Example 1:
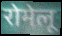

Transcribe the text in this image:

रोमेलू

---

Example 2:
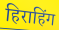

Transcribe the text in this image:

हिराहिंग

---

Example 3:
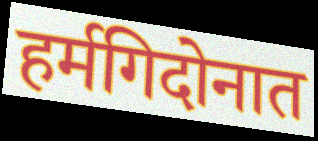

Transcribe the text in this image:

हर्मगिदोनात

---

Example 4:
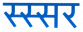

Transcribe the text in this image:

स्स्सर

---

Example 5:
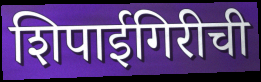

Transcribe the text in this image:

शिपाईगिरीची